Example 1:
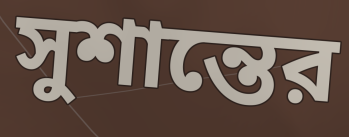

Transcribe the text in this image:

সুশান্তের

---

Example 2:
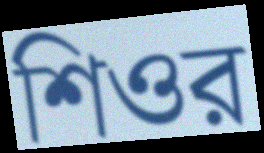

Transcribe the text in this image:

শিওর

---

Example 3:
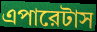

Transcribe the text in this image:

এপারেটাস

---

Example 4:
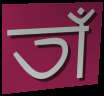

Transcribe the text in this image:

তাঁ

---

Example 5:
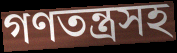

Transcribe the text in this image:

গণতন্ত্রসহ